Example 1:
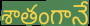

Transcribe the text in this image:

శాతంగానే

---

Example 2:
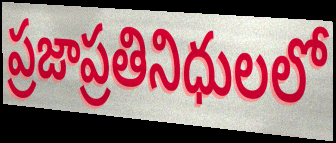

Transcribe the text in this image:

ప్రజాప్రతినిధులలో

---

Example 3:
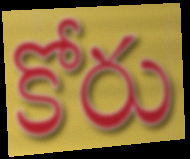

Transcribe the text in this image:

కోరు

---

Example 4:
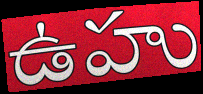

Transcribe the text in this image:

ఉహు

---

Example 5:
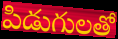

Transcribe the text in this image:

పిడుగులతో